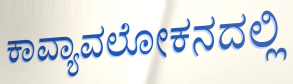
ಕಾವ್ಯಾವಲೋಕನದಲ್ಲಿ